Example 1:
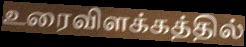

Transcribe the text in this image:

உரைவிளக்கத்தில்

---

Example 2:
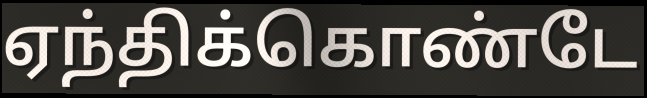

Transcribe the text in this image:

ஏந்திக்கொண்டே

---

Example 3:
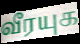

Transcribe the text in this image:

வீரயுக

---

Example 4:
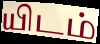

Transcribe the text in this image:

யிடம்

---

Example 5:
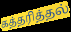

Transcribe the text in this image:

கத்தரித்தல்